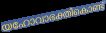
യഹോവാഭക്തികൊണ്ട്